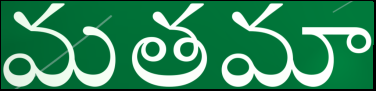
మతమా